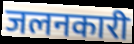
जलनकारी